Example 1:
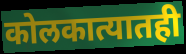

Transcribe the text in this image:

कोलकात्यातही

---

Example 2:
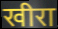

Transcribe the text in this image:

खीरा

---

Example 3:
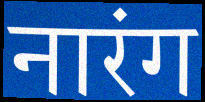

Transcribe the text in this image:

नारंग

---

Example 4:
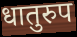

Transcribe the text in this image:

धातुरुप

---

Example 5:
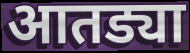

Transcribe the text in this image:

आतड्या